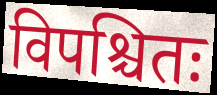
विपश्चितः